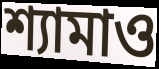
শ্যামাও